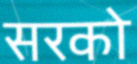
सरको